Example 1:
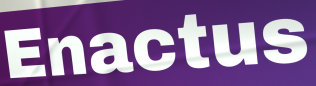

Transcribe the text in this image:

Enactus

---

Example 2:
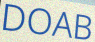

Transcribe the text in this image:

DOAB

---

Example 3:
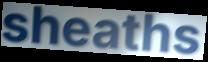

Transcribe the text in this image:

sheaths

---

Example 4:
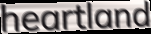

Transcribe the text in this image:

heartland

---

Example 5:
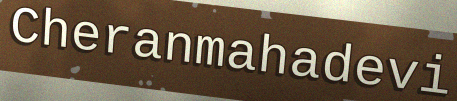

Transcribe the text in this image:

Cheranmahadevi